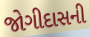
જોગીદાસની